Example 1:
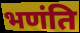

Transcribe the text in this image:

भणंति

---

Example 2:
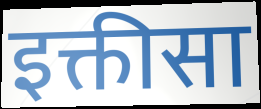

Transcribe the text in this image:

इक्तीसा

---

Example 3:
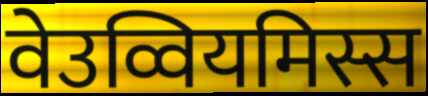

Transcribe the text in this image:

वेउव्वियमिस्स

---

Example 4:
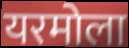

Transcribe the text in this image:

यरमोला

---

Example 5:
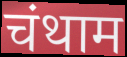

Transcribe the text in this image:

चंथाम